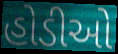
હોડીઓ